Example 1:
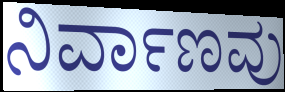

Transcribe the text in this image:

ನಿರ್ವಾಣವು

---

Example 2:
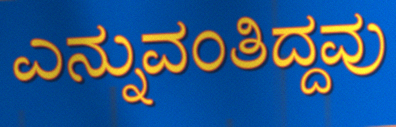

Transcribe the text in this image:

ಎನ್ನುವಂತಿದ್ದವು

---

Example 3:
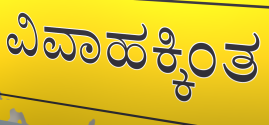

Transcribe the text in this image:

ವಿವಾಹಕ್ಕಿಂತ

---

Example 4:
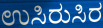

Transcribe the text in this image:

ಉಸಿರುಸಿರ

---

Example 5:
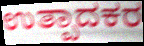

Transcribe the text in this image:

ಉತ್ಪಾದಕರ